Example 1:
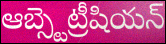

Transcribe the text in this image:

ఆబ్స్టెట్రీషియన్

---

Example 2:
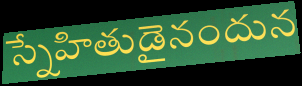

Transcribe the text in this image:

స్నేహితుడైనందున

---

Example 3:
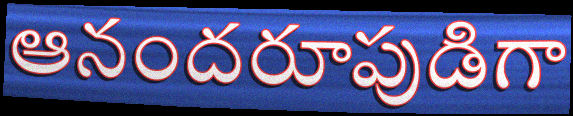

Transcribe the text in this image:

ఆనందరూపుడిగా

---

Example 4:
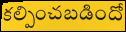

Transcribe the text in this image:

కల్పించబడిందో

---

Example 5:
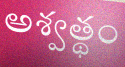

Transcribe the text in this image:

అశ్వత్థం